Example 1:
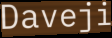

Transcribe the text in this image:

Daveji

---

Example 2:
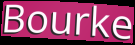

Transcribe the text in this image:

Bourke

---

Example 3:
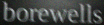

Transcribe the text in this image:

borewells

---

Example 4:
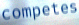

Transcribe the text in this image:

competes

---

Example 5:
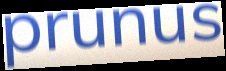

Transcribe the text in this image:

prunus